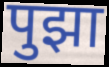
पुझा